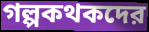
গল্পকথকদের